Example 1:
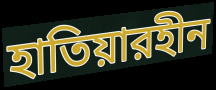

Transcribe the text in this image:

হাতিয়ারহীন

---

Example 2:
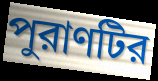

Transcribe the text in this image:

পুরাণটির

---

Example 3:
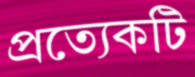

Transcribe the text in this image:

প্রত্যেকটি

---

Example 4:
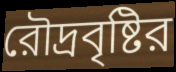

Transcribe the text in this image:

রৌদ্রবৃষ্টির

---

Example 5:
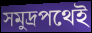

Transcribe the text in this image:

সমুদ্রপথেই